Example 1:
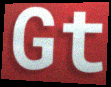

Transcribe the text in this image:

Gt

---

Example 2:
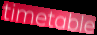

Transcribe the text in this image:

timetable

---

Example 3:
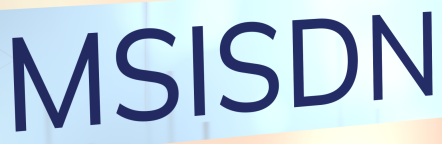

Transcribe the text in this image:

MSISDN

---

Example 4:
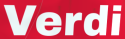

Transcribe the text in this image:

Verdi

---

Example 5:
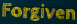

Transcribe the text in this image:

Forgiven